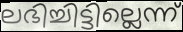
ലഭിച്ചിട്ടില്ലെന്ന്